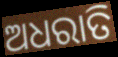
ଅଧରାତି